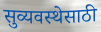
सुव्यवस्थेसाठी